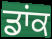
ਡਾਂਕ